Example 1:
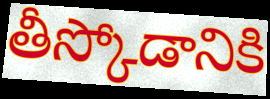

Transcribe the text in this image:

తీస్కోడానికి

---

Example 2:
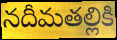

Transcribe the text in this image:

నదీమతల్లికి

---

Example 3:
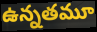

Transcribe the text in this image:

ఉన్నతమూ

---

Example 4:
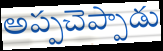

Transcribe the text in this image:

అప్పచెప్పాడు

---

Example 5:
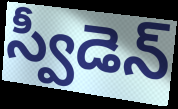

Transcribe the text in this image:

స్వీడెన్